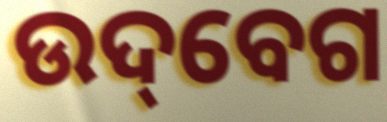
ଉଦ୍‌ବେଗ